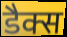
डैक्स